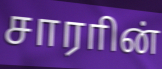
சாரரின்